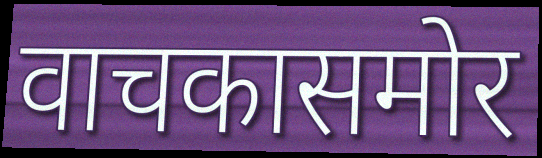
वाचकासमोर